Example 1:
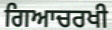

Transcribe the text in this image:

ਗਿਆਚਰਖੀ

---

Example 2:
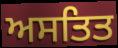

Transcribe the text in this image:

ਅਸਤਿਤ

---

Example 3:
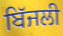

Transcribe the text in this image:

ਬਿੱਜਲੀ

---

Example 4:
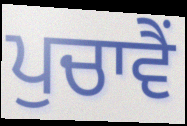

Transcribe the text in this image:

ਪੁਚਾਵੈਂ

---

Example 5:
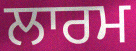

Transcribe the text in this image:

ਲਾਰਮ